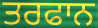
ਤਰਫਾਨ